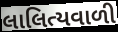
લાલિત્યવાળી